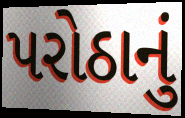
પરોઠાનું